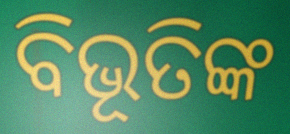
ବିଭୂତିଙ୍କ